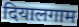
दियालगाम